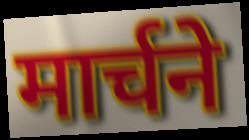
मार्चने